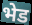
भेड